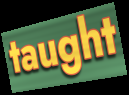
taught